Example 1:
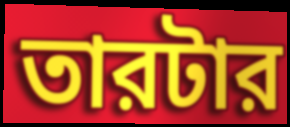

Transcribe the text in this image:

তারটার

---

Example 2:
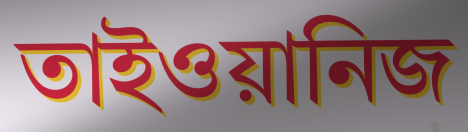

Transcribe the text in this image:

তাইওয়ানিজ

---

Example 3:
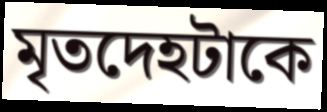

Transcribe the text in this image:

মৃতদেহটাকে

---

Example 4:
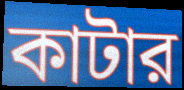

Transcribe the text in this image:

কাটার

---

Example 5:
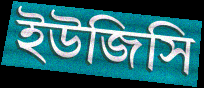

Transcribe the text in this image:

ইউজিসি